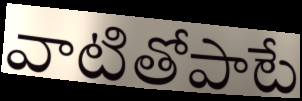
వాటితోపాటే